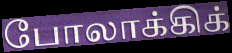
போலாக்கிக்